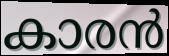
കാരൻ